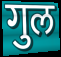
गुल